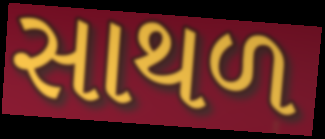
સાથળ